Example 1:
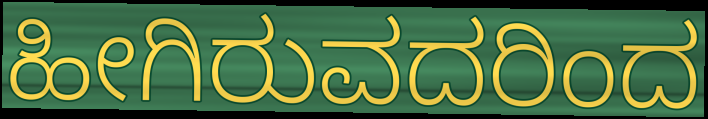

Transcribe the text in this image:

ಹೀಗಿರುವದರಿಂದ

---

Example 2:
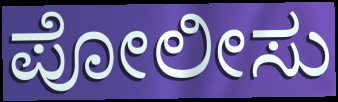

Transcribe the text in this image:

ಪೋಲೀಸು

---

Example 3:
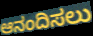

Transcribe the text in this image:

ಆನಂದಿಸಲು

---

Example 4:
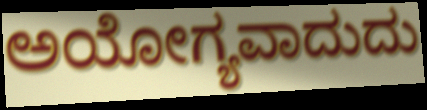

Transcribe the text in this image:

ಅಯೋಗ್ಯವಾದುದು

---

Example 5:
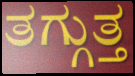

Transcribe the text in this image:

ತಗ್ಗುತ್ತ